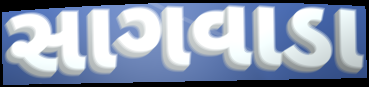
સાગવાડા